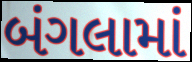
બંગલામાં